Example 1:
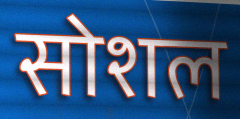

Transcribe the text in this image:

सोशल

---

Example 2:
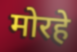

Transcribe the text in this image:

मोरहे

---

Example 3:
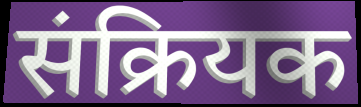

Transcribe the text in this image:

संक्रियक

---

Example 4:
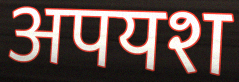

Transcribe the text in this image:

अपयश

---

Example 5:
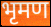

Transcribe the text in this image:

भृमण